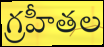
గ్రహీతల